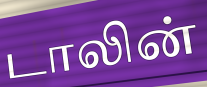
டாலின்